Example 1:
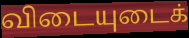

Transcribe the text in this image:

விடையுடைக்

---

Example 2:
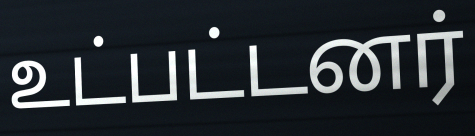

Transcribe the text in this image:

உட்பட்டனர்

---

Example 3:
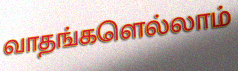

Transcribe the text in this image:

வாதங்களெல்லாம்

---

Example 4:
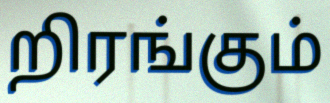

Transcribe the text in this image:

றிரங்கும்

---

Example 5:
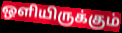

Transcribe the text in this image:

ஒளியிருக்கும்